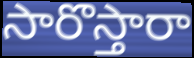
సారొస్తారా